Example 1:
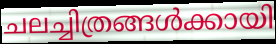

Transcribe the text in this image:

ചലച്ചിത്രങ്ങൾക്കായി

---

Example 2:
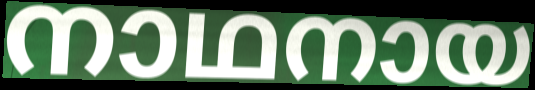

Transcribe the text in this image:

നാഥനായ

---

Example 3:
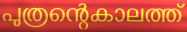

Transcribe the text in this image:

പുത്രന്റെകാലത്ത്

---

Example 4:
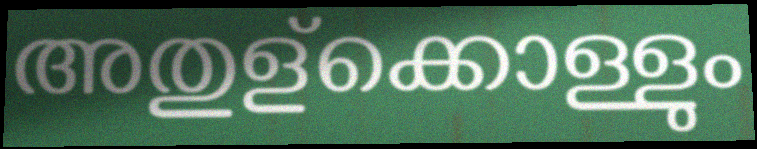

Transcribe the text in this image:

അതുള്ക്കൊള്ളും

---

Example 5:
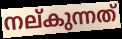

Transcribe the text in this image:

നല്കുന്നത്